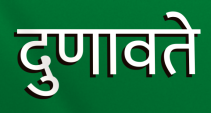
दुणावते